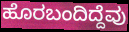
ಹೊರಬಂದಿದ್ದೆವು